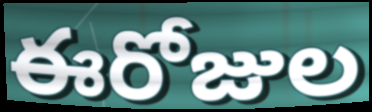
ఈరోజుల